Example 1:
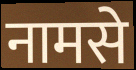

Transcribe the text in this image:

नामसे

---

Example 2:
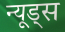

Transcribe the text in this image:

न्यूड्स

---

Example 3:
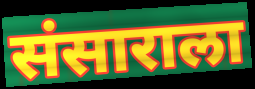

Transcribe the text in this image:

संसाराला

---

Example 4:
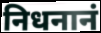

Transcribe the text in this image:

निधनानं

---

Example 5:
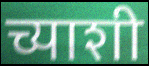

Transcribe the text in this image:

च्याशी